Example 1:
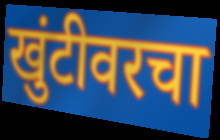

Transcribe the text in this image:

खुंटीवरचा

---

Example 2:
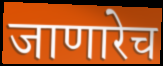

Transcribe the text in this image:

जाणारेच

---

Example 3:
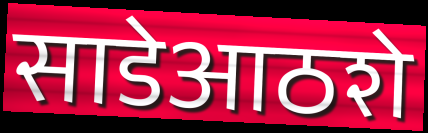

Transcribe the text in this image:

साडेआठशे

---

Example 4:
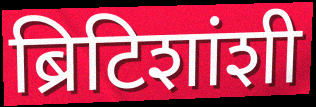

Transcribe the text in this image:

ब्रिटिशांशी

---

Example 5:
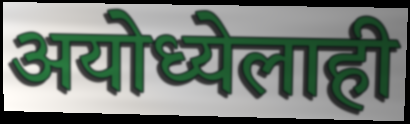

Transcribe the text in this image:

अयोध्येलाही